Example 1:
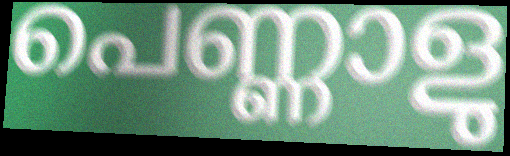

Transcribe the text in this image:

പെണ്ണാളു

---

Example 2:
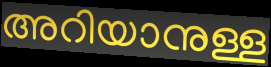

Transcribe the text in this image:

അറിയാനുള്ള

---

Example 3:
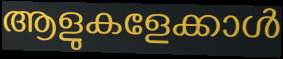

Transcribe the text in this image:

ആളുകളേക്കാൾ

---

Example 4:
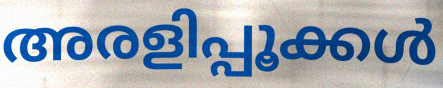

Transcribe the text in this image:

അരളിപ്പൂക്കൾ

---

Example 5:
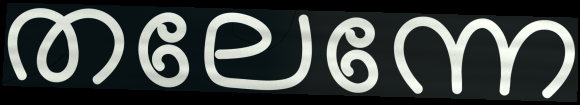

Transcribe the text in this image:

തലേന്നേ